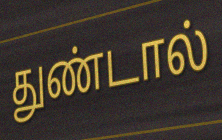
துண்டால்